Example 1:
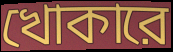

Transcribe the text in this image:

খোকারে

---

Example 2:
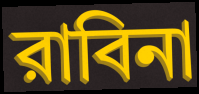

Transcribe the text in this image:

রাবিনা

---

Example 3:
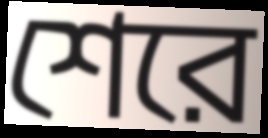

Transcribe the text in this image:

শেরে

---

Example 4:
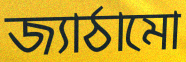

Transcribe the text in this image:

জ্যাঠামো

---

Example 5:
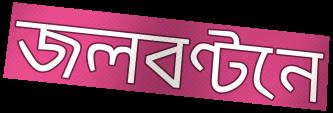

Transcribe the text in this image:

জলবণ্টনে